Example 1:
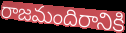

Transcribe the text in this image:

రాజమందిరానికి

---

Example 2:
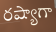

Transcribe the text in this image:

రష్యాగా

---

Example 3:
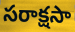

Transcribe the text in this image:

సరాక్షసా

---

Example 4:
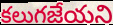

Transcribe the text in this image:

కలుగజేయని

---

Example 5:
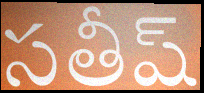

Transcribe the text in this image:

సతీష్